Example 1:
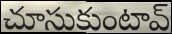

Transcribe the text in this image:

చూసుకుంటావ్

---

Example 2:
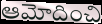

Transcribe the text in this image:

ఆమోదించి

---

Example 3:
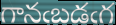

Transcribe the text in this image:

గానఁబడఁగ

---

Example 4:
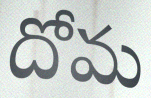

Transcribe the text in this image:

దోమ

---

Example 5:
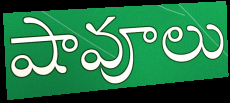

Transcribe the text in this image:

షావూలు